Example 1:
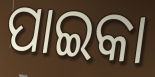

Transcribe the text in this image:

ପାଇକା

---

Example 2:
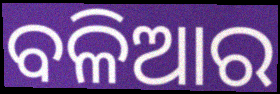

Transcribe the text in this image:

ବଳିଆର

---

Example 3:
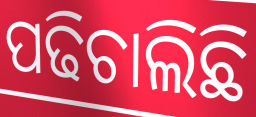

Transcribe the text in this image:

ପଢିଚାଲିଛି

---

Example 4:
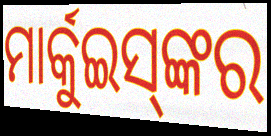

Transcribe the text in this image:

ମାର୍କୁଇସ୍‍ଙ୍କର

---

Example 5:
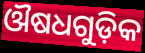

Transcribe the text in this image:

ଔଷଧଗୁଡ଼ିକ